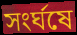
সংর্ঘষে